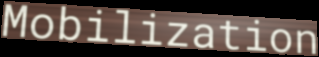
Mobilization